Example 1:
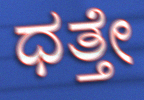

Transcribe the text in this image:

ಧತ್ತೇ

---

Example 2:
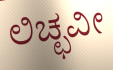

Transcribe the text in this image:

ಲಿಚ್ಛವೀ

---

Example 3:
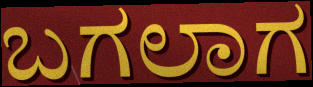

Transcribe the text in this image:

ಬಗಲಾಗ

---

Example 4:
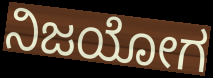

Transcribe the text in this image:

ನಿಜಯೋಗ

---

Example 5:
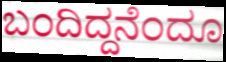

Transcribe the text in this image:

ಬಂದಿದ್ದನೆಂದೂ